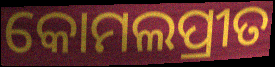
କୋମଲପ୍ରୀତ